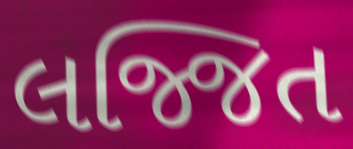
લજ્જિત